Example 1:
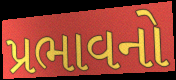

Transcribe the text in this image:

પ્રભાવનો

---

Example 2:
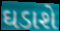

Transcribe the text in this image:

ઘડાશે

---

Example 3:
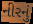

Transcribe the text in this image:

નીરનું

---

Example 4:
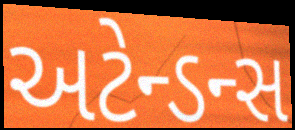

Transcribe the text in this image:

અટેન્ડન્સ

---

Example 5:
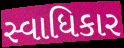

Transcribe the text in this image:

સ્વાધિકાર